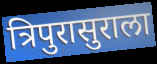
त्रिपुरासुराला